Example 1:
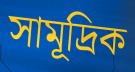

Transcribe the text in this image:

সামূদ্ৰিক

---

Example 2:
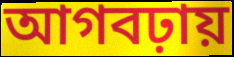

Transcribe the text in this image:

আগবঢ়ায়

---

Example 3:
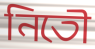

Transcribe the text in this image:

নিতৌ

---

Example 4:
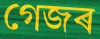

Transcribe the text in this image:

গেজৰ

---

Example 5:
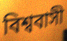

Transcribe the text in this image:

বিশ্ববাসী